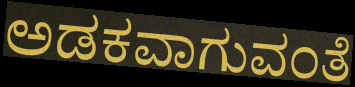
ಅಡಕವಾಗುವಂತೆ